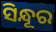
ସିନ୍ଧୂର